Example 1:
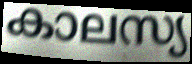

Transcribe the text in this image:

കാലസ്യ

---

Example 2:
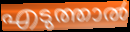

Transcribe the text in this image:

എടുത്താൽ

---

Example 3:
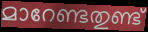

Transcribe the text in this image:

മാറേണ്ടതുണ്ട്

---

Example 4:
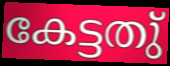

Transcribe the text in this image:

കേട്ടതു്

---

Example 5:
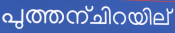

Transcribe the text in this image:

പുത്തന്ചിറയില്